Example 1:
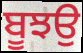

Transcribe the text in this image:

ਬੂਝਉ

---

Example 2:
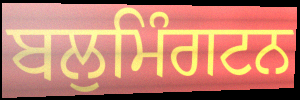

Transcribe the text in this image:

ਬਲੁਮਿੰਗਟਨ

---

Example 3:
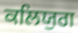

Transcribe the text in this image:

ਕਲਿਯੁਗ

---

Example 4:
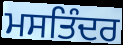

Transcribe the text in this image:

ਮਸਤਿੰਦਰ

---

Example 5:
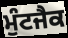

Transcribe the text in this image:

ਮੁੰਟਜੈਕ